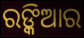
ରଙ୍କିଆର